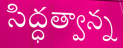
సిద్ధత్వాన్న